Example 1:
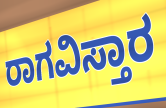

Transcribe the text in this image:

ರಾಗವಿಸ್ತಾರ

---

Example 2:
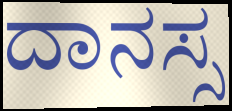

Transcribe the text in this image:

ದಾನಸ್ಸ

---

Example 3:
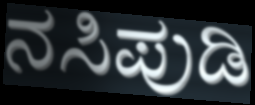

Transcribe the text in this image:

ನಸಿಪುಡಿ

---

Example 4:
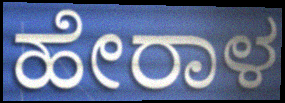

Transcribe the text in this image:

ಹೇರಾಳ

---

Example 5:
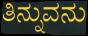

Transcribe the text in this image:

ತಿನ್ನುವನು